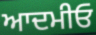
ਆਦਮੀਓ